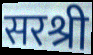
सरश्री